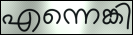
എന്നെങ്കി